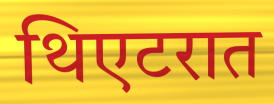
थिएटरात